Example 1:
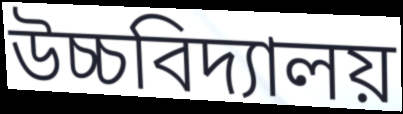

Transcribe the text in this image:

উচ্চবিদ্যালয়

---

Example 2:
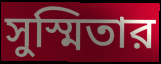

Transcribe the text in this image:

সুস্মিতার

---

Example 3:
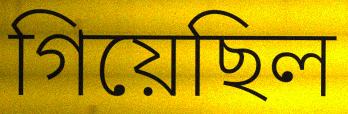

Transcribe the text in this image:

গিয়েছিল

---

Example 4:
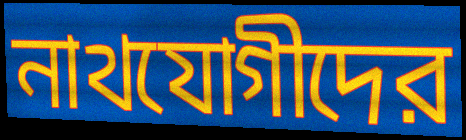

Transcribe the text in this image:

নাথযোগীদের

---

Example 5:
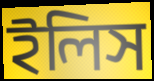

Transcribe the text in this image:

ইলিস